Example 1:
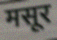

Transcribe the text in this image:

मसूर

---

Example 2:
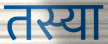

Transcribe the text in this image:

तस्या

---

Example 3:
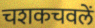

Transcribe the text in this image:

चशकचवलें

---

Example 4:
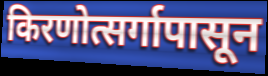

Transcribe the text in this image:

किरणोत्सर्गापासून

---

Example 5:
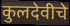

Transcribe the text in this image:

कुलदेवीचे